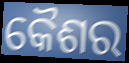
କୈଶର